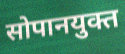
सोपानयुक्त